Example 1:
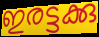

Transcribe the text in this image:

ഇരട്ടക്കു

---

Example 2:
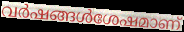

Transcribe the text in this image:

വർഷങ്ങൾശേഷമാണ്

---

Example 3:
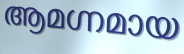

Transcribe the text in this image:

ആമഗ്നമായ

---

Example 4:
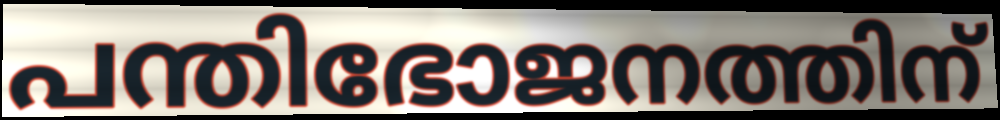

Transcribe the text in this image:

പന്തിഭോജനത്തിന്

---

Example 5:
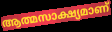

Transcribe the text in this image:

ആത്മസാക്ഷ്യമാണ്